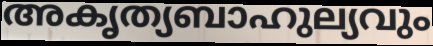
അകൃത്യബാഹുല്യവും